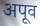
अपूव